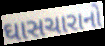
ઘાસચારાનો